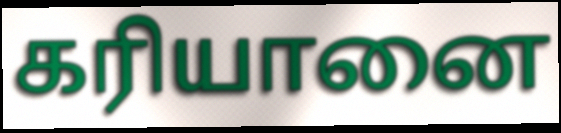
கரியானை